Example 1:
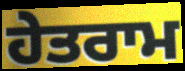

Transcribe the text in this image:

ਹੇਤਰਾਮ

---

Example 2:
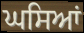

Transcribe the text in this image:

ਘਸਿਆਂ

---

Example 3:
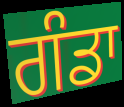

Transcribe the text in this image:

ਗੰਡਾ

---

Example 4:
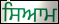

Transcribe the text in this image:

ਸਿਆਮ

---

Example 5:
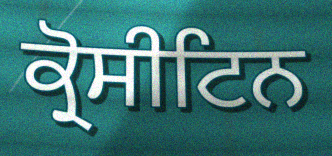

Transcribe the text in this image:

ਕ੍ਰੋਸੀਟਿਨ